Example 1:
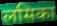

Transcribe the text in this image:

लसिका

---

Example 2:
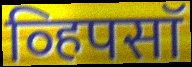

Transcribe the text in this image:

व्हिपसॉ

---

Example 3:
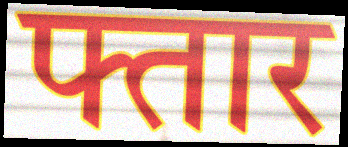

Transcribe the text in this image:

फ्तार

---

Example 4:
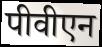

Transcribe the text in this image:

पीवीएन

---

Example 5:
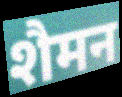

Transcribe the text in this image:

शैमन